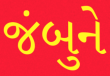
જંબુને